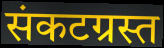
संकटग्रस्‍त